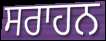
ਸਰਾਹਨ